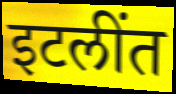
इटलींत